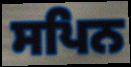
ਸਪਿਨ